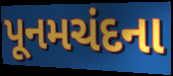
પૂનમચંદના